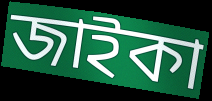
জাইকা